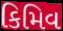
કિમિવ